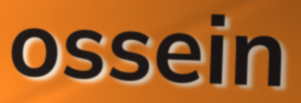
ossein